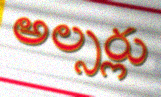
అల్సర్లు